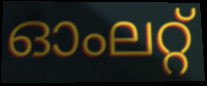
ഓംലറ്റ്